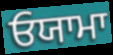
ਓਯਾਮਾ